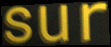
sur